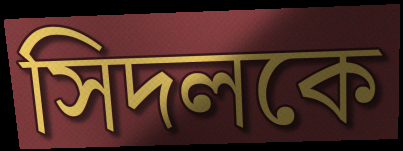
সিদলকে